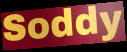
Soddy